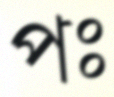
পঃ